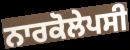
ਨਾਰਕੋਲੇਪਸੀ